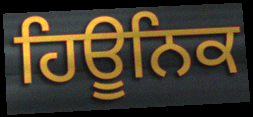
ਹਿਊਨਿਕ